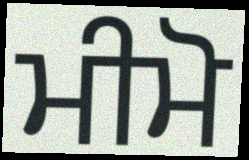
ਮੀਮੋ